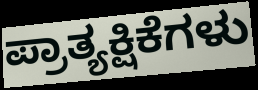
ಪ್ರಾತ್ಯಕ್ಷಿಕೆಗಳು